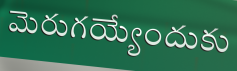
మెరుగయ్యేందుకు